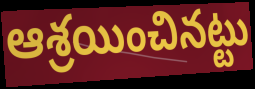
ఆశ్రయించినట్టు